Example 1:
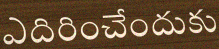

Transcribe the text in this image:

ఎదిరించేందుకు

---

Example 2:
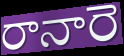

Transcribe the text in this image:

రానారె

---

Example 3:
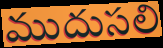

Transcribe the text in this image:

ముదుసలి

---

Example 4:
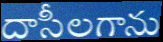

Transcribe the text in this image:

దాసీలగాను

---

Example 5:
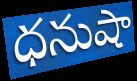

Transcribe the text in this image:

ధనుషా